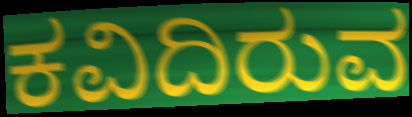
ಕವಿದಿರುವ